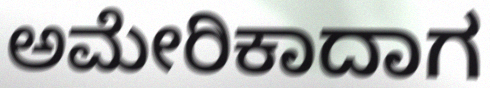
ಅಮೇರಿಕಾದಾಗ